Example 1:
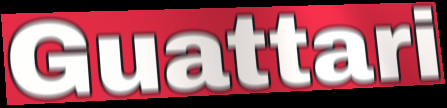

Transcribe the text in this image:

Guattari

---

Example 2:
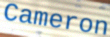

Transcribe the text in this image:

Cameron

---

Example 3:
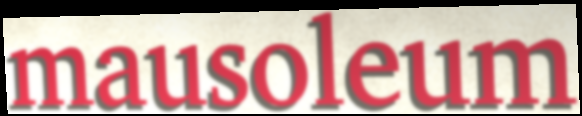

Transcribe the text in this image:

mausoleum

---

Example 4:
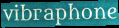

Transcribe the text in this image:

vibraphone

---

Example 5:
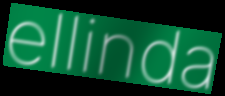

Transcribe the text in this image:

ellinda